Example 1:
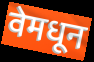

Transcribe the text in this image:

वेमधून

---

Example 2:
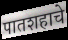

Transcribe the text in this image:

पातशहाचे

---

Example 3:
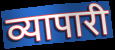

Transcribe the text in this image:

व्यापारी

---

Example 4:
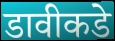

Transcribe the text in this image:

डावीकडे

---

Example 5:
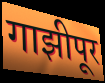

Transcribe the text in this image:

गाझीपूर